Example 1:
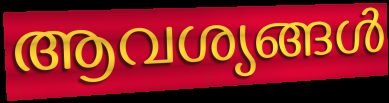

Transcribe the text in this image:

ആവശ്യങ്ങൾ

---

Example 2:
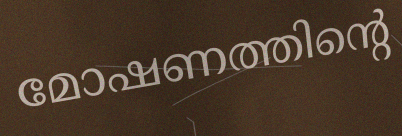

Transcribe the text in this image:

മോഷണത്തിന്റെ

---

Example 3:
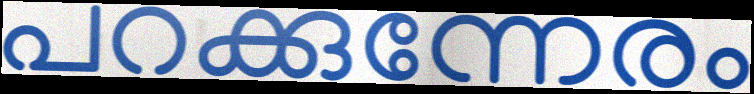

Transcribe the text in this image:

പറക്കുന്നേരം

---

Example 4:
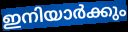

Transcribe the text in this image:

ഇനിയാർക്കും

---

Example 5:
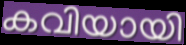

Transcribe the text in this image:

കവിയായി